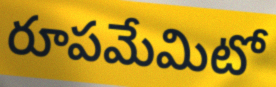
రూపమేమిటో